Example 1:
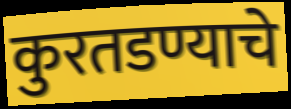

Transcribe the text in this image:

कुरतडण्याचे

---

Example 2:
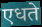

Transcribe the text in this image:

एधते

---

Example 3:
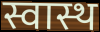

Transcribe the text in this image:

स्वास्थ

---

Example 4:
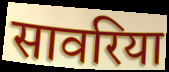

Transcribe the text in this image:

सावरिया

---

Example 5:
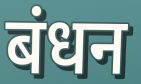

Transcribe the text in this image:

बंधन